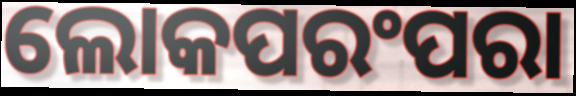
ଲୋକପରଂପରା